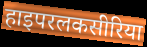
हाइपरलकसीरिया